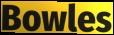
Bowles